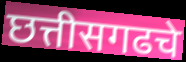
छत्तीसगढचे